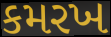
કમરખ